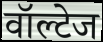
वॉल्टेज